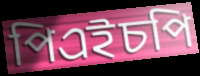
পিএইচপি